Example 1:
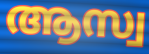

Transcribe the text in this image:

ആസ്വ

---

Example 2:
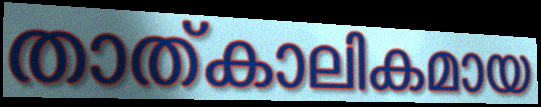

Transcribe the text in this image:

താത്കാലികമായ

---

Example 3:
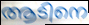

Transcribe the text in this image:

ആടിനെ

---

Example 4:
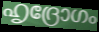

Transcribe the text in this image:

ഹൃദ്രോഗം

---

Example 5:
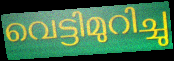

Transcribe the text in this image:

വെട്ടിമുറിച്ചു